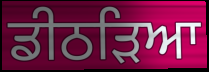
ਡੀਠੜਿਆ